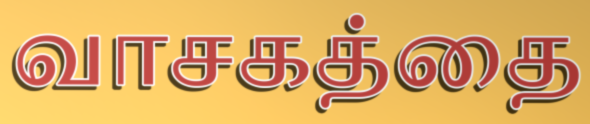
வாசகத்தை